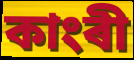
কাংৰী